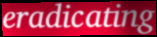
eradicating